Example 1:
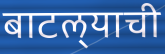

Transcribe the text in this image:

बाटल्याची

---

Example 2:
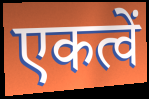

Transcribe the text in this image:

एकत्वें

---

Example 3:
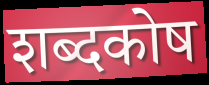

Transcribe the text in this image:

शब्दकोष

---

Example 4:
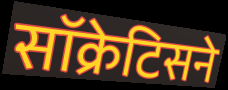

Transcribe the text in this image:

सॉक्रेटिसने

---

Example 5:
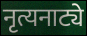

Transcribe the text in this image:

नृत्यनाट्ये